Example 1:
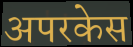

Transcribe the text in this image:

अपरकेस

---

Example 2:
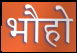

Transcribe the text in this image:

भौहो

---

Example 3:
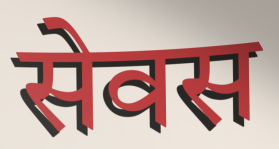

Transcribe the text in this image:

सेवस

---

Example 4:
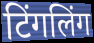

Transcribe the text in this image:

टिंगलिंग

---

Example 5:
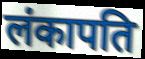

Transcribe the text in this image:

लंकापति